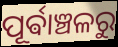
ପୂର୍ଵାଞ୍ଚଳରୁ